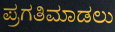
ಪ್ರಗತಿಮಾಡಲು